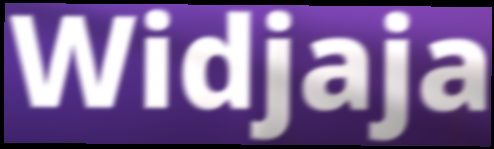
Widjaja